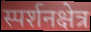
स्पर्शनक्षेत्र